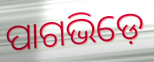
ପାଗଭିଡ଼େ